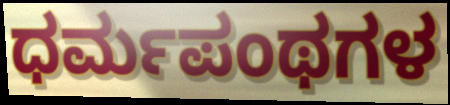
ಧರ್ಮಪಂಥಗಳ